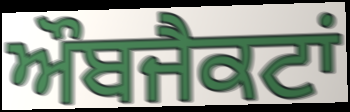
ਔਬਜੈਕਟਾਂ